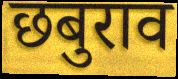
छबुराव